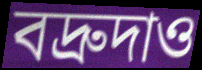
বদ্রুদাও